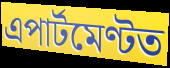
এপাৰ্টমেণ্টত